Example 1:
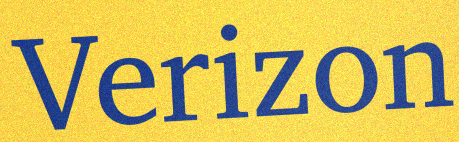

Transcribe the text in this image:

Verizon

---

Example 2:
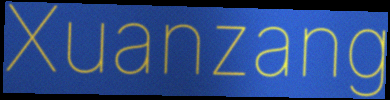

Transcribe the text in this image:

Xuanzang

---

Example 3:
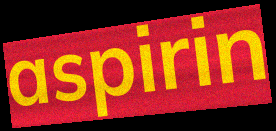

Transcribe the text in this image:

aspirin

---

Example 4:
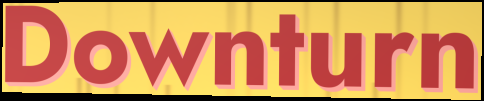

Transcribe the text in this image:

Downturn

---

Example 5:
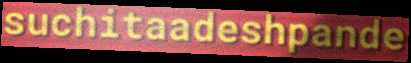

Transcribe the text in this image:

suchitaadeshpande